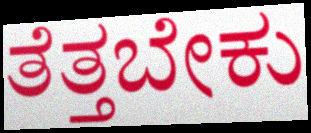
ತೆತ್ತಬೇಕು